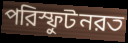
পরিস্ফুটনরত